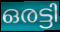
ഒരട്ടി